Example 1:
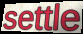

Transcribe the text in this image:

settle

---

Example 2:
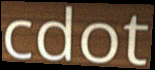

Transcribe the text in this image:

cdot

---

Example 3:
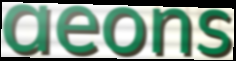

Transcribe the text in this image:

aeons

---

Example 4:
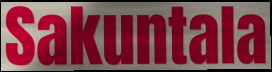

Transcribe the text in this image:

Sakuntala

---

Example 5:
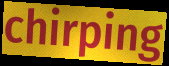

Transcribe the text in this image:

chirping